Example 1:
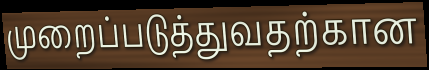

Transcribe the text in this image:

முறைப்படுத்துவதற்கான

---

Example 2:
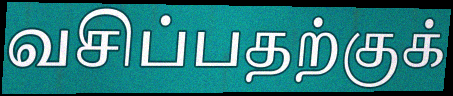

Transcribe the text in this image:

வசிப்பதற்குக்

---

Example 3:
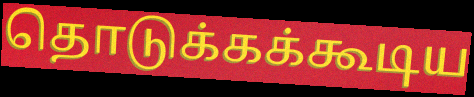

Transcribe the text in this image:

தொடுக்கக்கூடிய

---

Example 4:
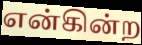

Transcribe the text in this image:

என்கின்ற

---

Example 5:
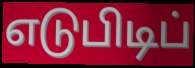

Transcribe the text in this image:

எடுபிடிப்